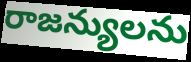
రాజన్యులను